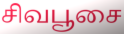
சிவபூசை